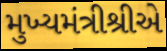
મુખ્યમંત્રીશ્રીએ